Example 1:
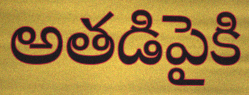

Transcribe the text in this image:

అతడిపైకి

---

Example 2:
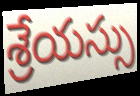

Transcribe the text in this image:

శ్రేయస్సు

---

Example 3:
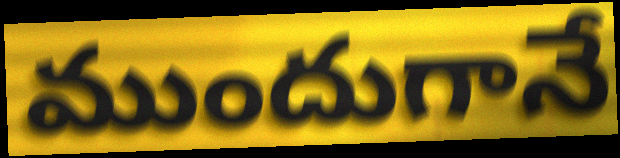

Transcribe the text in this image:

ముందుగానే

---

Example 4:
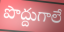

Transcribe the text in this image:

పొద్దుగాలే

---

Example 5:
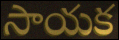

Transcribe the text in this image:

సాయక